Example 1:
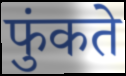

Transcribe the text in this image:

फुंकते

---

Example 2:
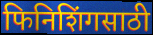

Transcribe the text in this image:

फिनिशिंगसाठी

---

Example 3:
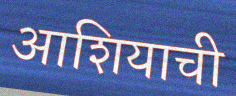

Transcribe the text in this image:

आशियाची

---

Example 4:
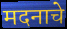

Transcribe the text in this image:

मदनाचे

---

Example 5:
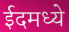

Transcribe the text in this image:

ईदमध्ये